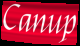
Canup